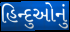
હિન્દુઓનું